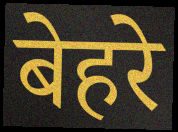
बेहरे